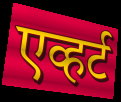
एव्हर्ट